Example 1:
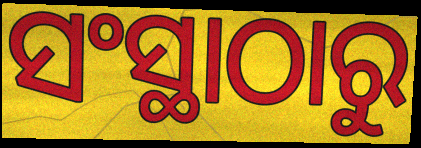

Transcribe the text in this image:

ସଂସ୍ଥାଠାରୁ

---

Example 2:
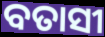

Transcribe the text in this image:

ବତାସୀ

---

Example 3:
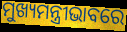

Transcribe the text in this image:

ମୁଖ୍ୟମନ୍ତ୍ରୀଭାବରେ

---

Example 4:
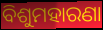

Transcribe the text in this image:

ବିଶୁମହାରଣା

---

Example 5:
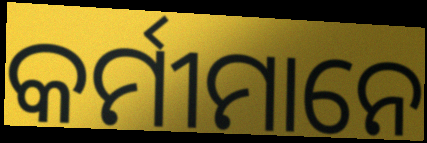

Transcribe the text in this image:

କର୍ମୀମାନେ